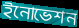
ইনোভেশন